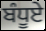
ਬੰਧੂਏ